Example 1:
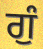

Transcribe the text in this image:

ਗੁੰ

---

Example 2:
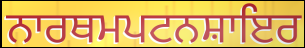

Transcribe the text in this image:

ਨਾਰਥਮਪਟਨਸ਼ਾਇਰ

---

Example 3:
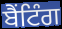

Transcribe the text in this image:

ਬੈਂਟਿੰਗ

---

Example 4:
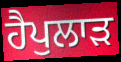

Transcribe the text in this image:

ਹੈਪੁਲਾੜ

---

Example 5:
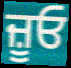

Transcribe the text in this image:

ਜ਼ੂਓ